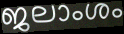
ജലാംശം